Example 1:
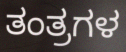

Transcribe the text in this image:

ತಂತ್ರಗಳ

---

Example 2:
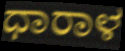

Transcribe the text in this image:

ಧಾರಾಳ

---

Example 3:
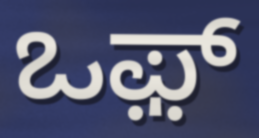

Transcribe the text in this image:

ಒಫ಼್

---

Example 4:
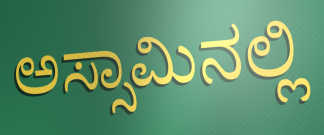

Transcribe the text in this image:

ಅಸ್ಸಾಮಿನಲ್ಲಿ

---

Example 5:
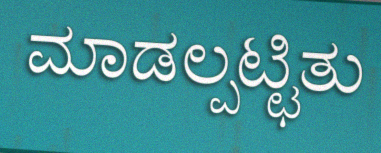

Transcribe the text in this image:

ಮಾಡಲ್ಪಟ್ಟಿತು